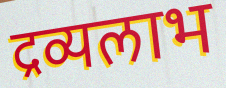
द्रव्यलाभ